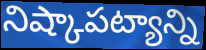
నిష్కాపట్యాన్ని